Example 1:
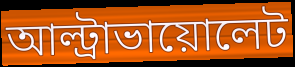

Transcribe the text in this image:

আল্ট্রাভায়োলেট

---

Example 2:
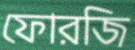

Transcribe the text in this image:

ফোরজি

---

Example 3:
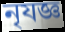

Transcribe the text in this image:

নৃযজ্ঞ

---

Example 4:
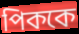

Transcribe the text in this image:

পিককে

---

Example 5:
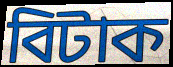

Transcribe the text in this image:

বিটাক